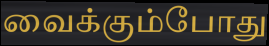
வைக்கும்போது